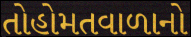
તોહોમતવાળાનો